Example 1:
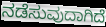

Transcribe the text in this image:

ನಡೆಸುವುದಾಗಿದೆ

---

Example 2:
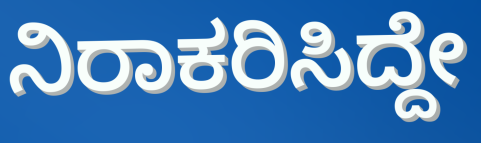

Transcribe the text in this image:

ನಿರಾಕರಿಸಿದ್ದೇ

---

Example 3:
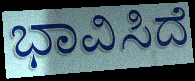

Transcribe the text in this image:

ಭಾವಿಸಿದೆ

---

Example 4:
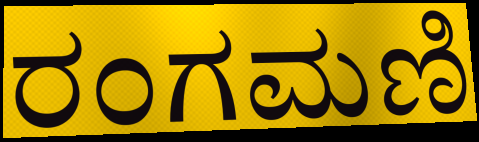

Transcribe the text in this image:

ರಂಗಮಣಿ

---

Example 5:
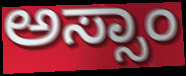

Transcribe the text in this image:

ಅಸ್ಸಾಂ